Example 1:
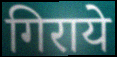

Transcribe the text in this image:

गिराये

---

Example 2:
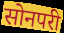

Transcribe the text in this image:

सोनपरी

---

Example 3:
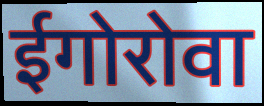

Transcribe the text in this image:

ईगोरोवा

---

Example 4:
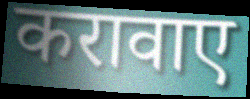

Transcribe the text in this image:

करावाए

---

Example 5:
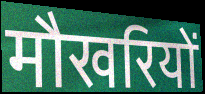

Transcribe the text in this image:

मौखरियों